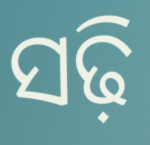
ସଢ଼ି